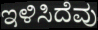
ಇಳಿಸಿದೆವು